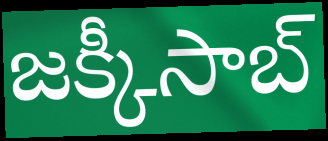
జక్కీసాబ్